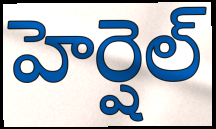
హెర్షెల్